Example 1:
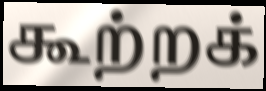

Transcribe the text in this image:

கூற்றக்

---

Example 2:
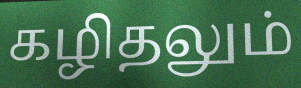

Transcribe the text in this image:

கழிதலும்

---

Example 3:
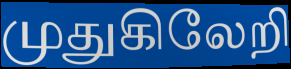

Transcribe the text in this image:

முதுகிலேறி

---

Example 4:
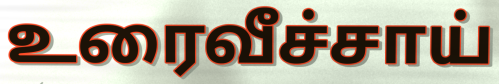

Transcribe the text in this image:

உரைவீச்சாய்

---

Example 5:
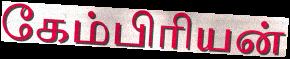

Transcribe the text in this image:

கேம்பிரியன்